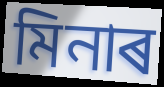
মিনাৰ